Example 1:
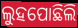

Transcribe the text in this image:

ଲୁହପୋଛିଲି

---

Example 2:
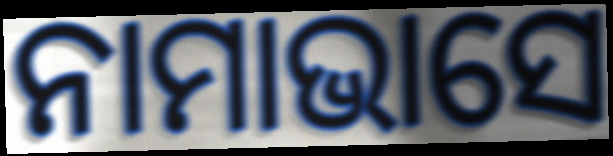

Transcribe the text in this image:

ନାମାଭାସେ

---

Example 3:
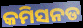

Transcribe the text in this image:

କମିସନଡ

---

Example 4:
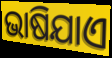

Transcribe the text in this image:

ଭାଷିଯାଏ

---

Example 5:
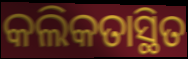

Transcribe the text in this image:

କଲିକତାସ୍ଥିତ